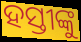
ହସ୍ତୀଙ୍କୁ